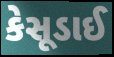
કેસૂડાઈ